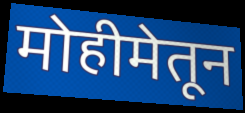
मोहीमेतून